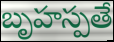
బృహస్పతే